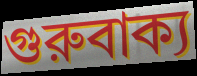
গুরুবাক্য